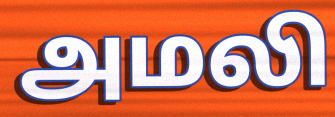
அமலி